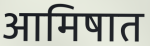
आमिषात